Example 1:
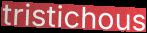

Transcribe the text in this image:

tristichous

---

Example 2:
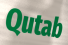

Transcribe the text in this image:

Qutab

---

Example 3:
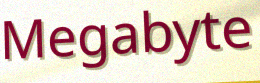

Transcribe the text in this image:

Megabyte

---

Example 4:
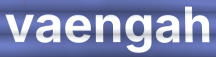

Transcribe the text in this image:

vaengah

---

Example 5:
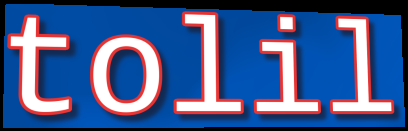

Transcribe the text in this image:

tolil